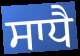
ਸਾਧੈ